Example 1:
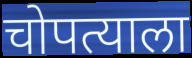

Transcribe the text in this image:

चोपत्याला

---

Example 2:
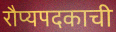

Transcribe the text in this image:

रौप्यपदकाची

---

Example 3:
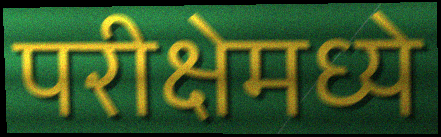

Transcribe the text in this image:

परीक्षेमध्ये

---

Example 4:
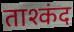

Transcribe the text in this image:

ताश्कंद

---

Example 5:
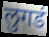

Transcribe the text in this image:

लुगडं